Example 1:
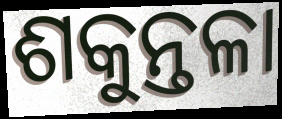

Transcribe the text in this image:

ଶକୁନ୍ତଳା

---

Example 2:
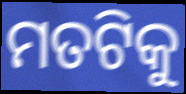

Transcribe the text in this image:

ମତଟିକୁ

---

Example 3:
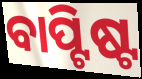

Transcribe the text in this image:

ବାପ୍ଟିଷ୍ଟ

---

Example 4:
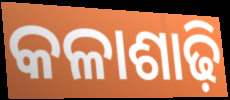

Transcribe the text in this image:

କଳାଶାଢ଼ି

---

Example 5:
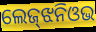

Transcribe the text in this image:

ଲେଜ୍‌ଝନିଓଭ